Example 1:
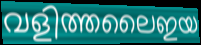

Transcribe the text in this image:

വളിത്തലൈഇയ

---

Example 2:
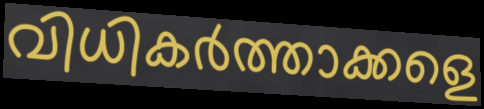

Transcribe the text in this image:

വിധികർത്താക്കളെ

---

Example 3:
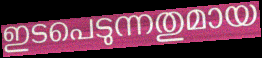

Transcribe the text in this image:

ഇടപെടുന്നതുമായ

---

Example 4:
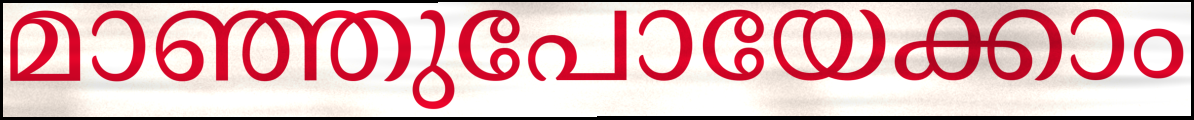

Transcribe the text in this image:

മാഞ്ഞുപോയേക്കാം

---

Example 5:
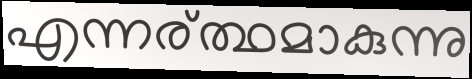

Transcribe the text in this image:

എന്നര്ത്ഥമാകുന്നു